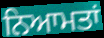
ਨਿਆਮਤਾਂ